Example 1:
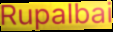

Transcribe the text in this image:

Rupalbai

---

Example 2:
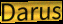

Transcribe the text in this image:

Darus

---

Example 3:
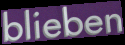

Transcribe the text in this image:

blieben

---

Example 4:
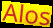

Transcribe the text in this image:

Alos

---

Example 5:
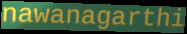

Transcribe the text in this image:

nawanagarthi